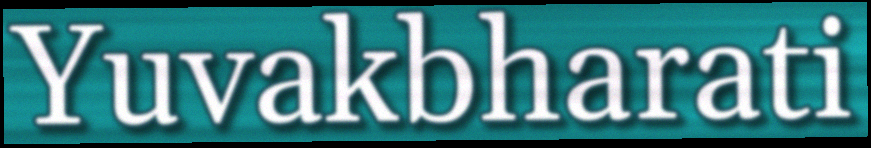
Yuvakbharati